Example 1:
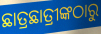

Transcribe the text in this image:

ଛାତ୍ରଛାତ୍ରୀଙ୍କଠାରୁ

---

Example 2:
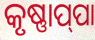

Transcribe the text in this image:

କୃଷ୍ଣାପ୍‌ପା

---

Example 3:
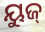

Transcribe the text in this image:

ୟୁଜ୍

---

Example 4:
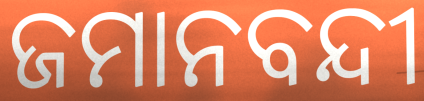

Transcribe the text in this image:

ଜମାନବନ୍ଦୀ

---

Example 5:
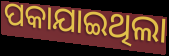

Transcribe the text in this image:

ପକାଯାଇଥିଲା